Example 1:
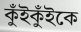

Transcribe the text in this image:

কুঁইকুঁইকে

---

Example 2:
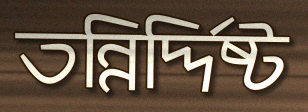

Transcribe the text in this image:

তন্নির্দ্দিষ্ট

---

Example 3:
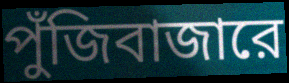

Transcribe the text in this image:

পুঁজিবাজারে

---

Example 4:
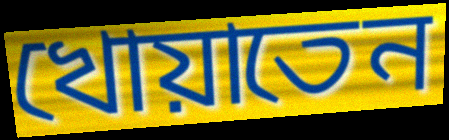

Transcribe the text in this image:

খোয়াতেন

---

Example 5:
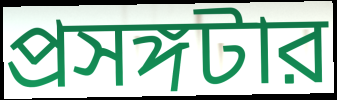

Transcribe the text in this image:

প্রসঙ্গটার